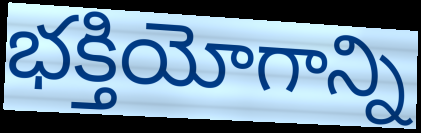
భక్తియోగాన్ని